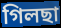
গিলছা